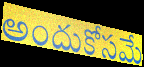
అందుకోసమే